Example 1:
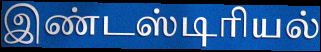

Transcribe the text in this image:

இண்டஸ்டிரியல்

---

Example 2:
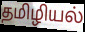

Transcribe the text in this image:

தமிழியல்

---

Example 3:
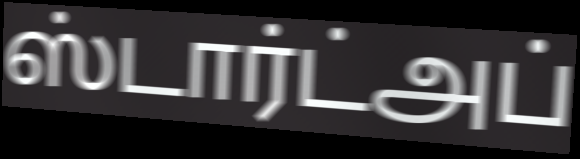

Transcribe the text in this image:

ஸ்டார்ட்அப்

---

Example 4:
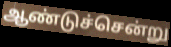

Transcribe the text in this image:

ஆண்டுச்சென்று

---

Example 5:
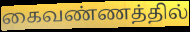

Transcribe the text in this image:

கைவண்ணத்தில்